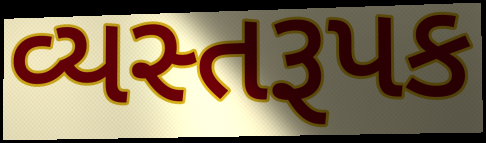
વ્યસ્તરૂપક